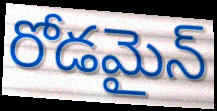
రోడమైన్